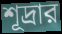
শূদ্রার